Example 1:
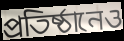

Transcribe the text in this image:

প্রতিষ্ঠানেও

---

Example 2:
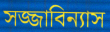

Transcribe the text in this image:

সজ্জাবিন্যাস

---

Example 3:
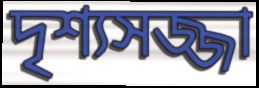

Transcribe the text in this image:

দৃশ্যসজ্জা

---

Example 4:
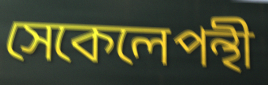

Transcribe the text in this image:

সেকেলেপন্থী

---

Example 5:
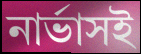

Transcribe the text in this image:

নার্ভাসই